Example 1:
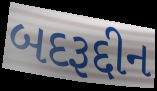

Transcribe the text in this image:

બદરૂદ્દીન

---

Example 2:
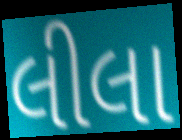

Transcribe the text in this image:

લીલા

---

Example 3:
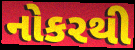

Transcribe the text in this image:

નોકરથી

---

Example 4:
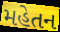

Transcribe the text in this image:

મહેતન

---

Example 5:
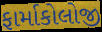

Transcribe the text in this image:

ફાર્માકોલોજી